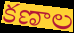
కణాల